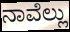
ನಾವೆಲ್ಲು